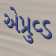
એપ્રુવ્ડ